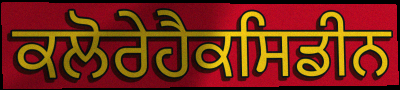
ਕਲੋਰੇਹੈਕਸਿਡੀਨ